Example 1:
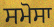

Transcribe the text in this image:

ਸਮੋਸਾ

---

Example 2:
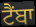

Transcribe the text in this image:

ਟੈਂਬਾ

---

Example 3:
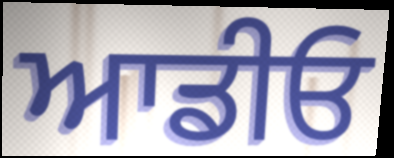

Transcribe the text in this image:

ਆਡੀਓ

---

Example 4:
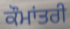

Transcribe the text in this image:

ਕੌਮਾਂਤਰੀ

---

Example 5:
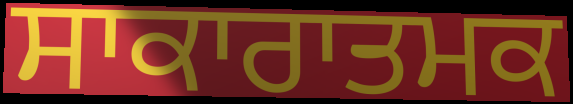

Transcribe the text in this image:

ਸਾਕਾਰਾਤਮਕ